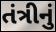
તંત્રીનું